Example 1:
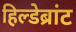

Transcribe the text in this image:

हिल्डेब्रांट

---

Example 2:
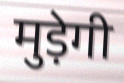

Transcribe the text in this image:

मुड़ेगी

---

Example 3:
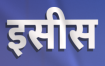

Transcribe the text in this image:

इसीस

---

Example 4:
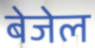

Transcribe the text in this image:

बेजेल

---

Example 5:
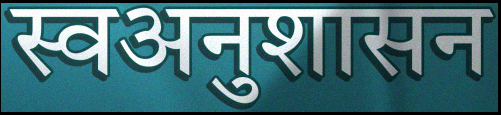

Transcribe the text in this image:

स्वअनुशासन